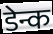
डेन्क